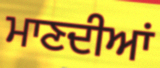
ਮਾਣਦੀਆਂ